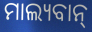
ମାଲ୍ୟବାନ୍